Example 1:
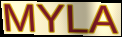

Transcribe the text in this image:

MYLA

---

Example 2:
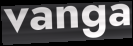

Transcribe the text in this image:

vanga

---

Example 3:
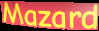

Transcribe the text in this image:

Mazard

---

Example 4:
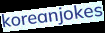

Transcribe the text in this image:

koreanjokes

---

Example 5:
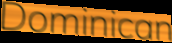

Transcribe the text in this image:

Dominican